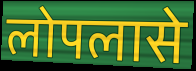
लोपलासे